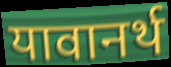
यावानर्थ